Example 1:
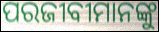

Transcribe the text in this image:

ପରଜୀବୀମାନଙ୍କୁ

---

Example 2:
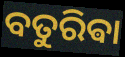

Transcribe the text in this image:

ବତୁରିଵା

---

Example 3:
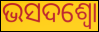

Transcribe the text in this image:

ଭସଦଶ୍ଵୋ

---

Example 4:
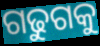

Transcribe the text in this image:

ଗଢୁଗକୁ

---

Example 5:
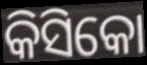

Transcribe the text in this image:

କିସିକୋ